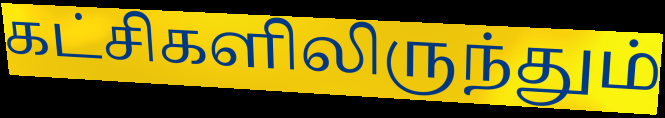
கட்சிகளிலிருந்தும்